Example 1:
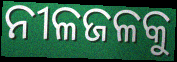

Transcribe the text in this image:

ନୀଳଜଳକୁ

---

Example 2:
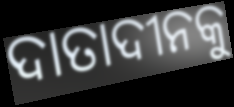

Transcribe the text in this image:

ଦାତାଦୀନକୁ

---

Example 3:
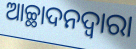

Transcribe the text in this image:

ଆଚ୍ଛାଦନଦ୍ୱାରା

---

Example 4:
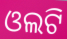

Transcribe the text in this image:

ଓଲଟି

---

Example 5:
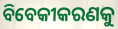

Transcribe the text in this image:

ବିବେକୀକରଣକୁ